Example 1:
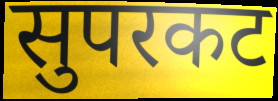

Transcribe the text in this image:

सुपरकट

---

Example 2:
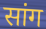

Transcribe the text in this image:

सांग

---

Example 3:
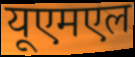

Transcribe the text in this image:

यूएमएल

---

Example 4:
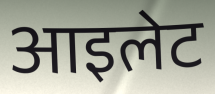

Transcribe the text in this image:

आइलेट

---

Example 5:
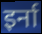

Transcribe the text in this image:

इर्ना